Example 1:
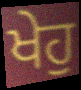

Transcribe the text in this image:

ਖੇਹੁ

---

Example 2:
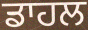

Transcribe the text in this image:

ਡਾਹਲ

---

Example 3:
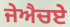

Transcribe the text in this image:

ਜੇਐਚਏ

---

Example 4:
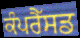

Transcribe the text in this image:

ਕੰਪਰੈੱਸਡ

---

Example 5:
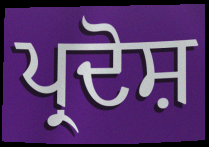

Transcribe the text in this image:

ਪ੍ਰਦੋਸ਼